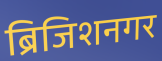
ब्रिजिशनगर